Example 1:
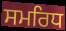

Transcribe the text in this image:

ਸਮਰਿਧ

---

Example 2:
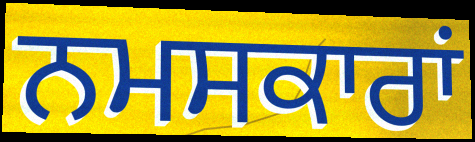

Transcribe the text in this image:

ਨਮਸਕਾਰਾਂ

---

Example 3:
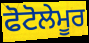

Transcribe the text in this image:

ਫੋਟੋਲੇਮੂਰ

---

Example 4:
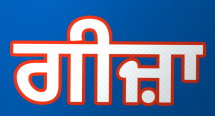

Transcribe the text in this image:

ਗੀਜ਼ਾ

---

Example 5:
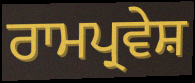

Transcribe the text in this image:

ਰਾਮਪ੍ਰਵੇਸ਼